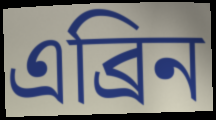
এব্ৰিন